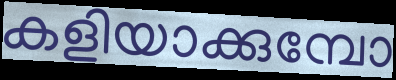
കളിയാക്കുമ്പോ